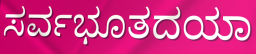
ಸರ್ವಭೂತದಯಾ